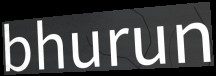
bhurun